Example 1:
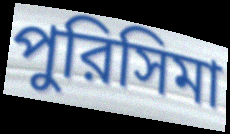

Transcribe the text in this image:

পুরিসিমা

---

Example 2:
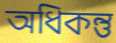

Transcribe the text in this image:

অধিকন্তু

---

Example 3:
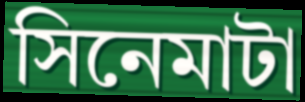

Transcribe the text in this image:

সিনেমাটা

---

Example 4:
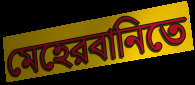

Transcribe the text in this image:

মেহেরবানিতে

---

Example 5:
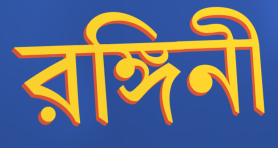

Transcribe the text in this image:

রঙ্গিনী